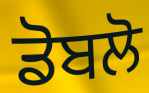
ਡੋਬਲੋ